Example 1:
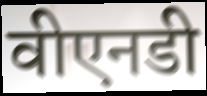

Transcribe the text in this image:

वीएनडी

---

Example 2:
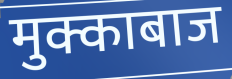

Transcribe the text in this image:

मुक्काबाज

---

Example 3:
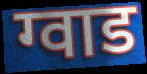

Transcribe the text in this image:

ग्वाड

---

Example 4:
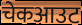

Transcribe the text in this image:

चेकआउट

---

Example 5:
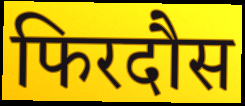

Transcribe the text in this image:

फिरदौस